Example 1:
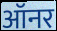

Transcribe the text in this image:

ऑनर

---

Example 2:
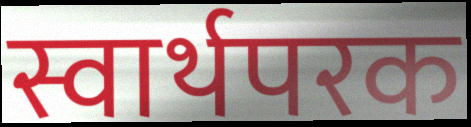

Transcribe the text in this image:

स्वार्थपरक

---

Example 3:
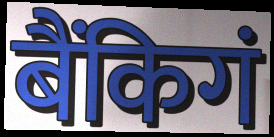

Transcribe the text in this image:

बैंकिगं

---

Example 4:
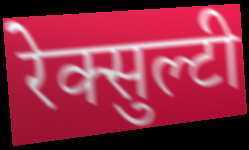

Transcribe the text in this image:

रेक्सुल्टी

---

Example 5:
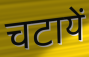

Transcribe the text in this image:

चटायें